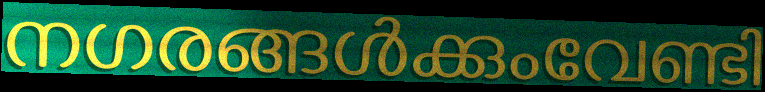
നഗരങ്ങൾക്കുംവേണ്ടി